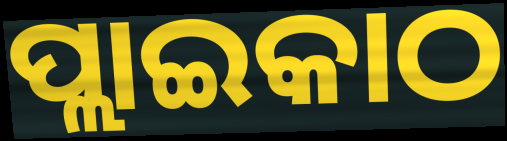
ପ୍ଲାଇକାଠ